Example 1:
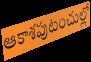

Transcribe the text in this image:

ఆకాశపుటంచుల్లో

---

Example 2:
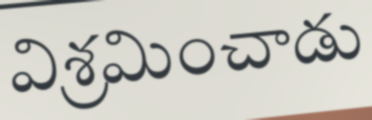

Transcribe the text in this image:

విశ్రమించాడు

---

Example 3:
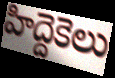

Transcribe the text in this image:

హిద్దెకెలు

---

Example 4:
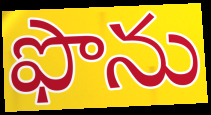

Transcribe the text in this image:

ఫొను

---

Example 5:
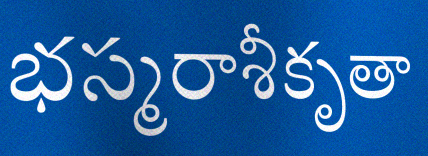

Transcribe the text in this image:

భస్మరాశీకృతా